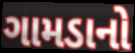
ગામડાનો